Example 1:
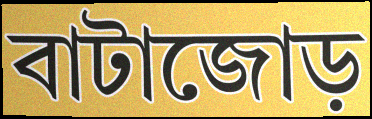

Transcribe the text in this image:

বাটাজোড়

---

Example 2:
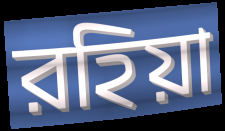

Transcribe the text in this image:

রহিয়া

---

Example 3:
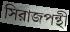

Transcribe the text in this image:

সিরাজপন্থী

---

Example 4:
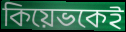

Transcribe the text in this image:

কিয়েভকেই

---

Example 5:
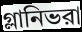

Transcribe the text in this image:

গ্লানিভরা